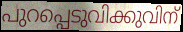
പുറപ്പെടുവിക്കുവിന്